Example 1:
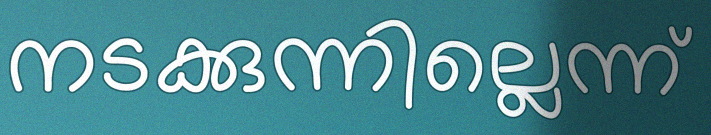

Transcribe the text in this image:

നടക്കുന്നില്ലെന്ന്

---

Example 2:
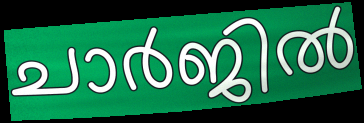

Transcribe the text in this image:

ചാർജിൽ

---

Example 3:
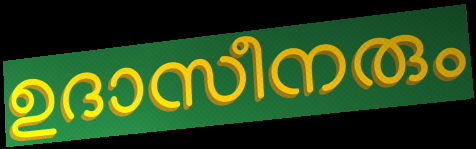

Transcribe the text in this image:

ഉദാസീനരും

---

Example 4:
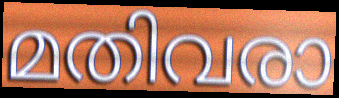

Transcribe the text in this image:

മതിവരാ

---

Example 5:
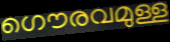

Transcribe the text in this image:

ഗൌരവമുള്ള